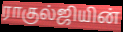
ராகுல்ஜியின்